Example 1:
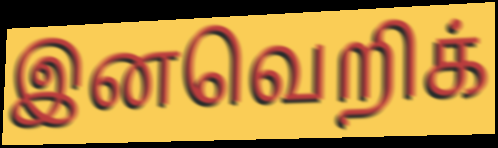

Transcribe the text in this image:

இனவெறிக்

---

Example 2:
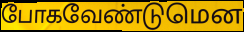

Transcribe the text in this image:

போகவேண்டுமென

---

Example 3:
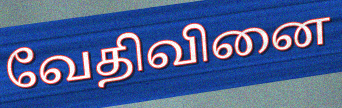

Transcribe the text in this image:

வேதிவினை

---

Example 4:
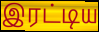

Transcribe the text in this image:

இரட்டிய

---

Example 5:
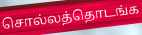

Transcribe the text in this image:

சொல்லத்தொடங்க